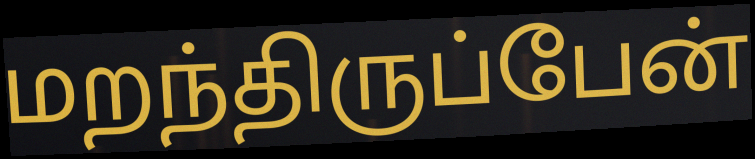
மறந்திருப்பேன்